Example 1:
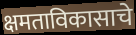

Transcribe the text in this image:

क्षमताविकासाचे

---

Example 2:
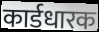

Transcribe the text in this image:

कार्डधारक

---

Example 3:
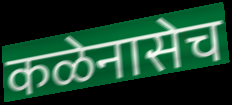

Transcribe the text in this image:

कळेनासेच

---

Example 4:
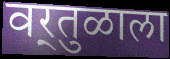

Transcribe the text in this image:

वर्तुळाला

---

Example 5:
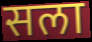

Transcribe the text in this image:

सला